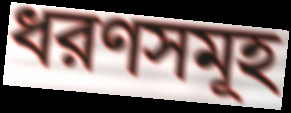
ধরণসমূহ